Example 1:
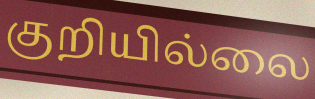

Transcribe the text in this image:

குறியில்லை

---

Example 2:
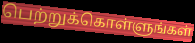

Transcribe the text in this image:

பெற்றுக்கொள்ளுங்கள்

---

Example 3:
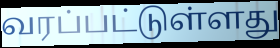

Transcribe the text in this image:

வரப்பட்டுள்ளது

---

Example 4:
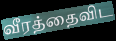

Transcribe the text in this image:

வீரத்தைவிட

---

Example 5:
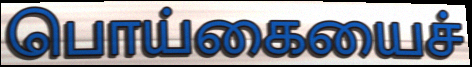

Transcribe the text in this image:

பொய்கையைச்